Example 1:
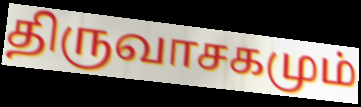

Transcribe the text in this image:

திருவாசகமும்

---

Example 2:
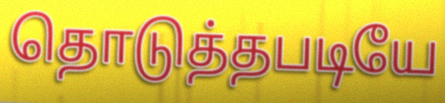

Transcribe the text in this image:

தொடுத்தபடியே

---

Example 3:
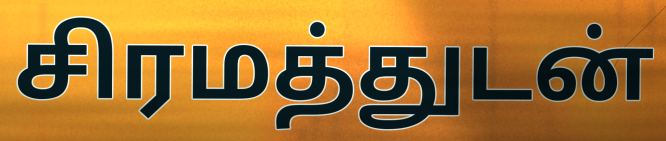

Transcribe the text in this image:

சிரமத்துடன்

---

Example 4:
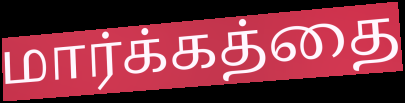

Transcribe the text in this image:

மார்க்கத்தை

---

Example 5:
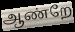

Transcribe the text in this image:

ஆண்றே